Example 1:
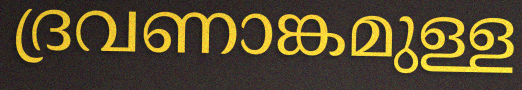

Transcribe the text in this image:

ദ്രവണാങ്കമുള്ള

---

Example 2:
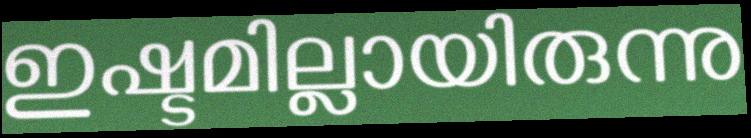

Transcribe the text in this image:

ഇഷ്ടമില്ലായിരുന്നു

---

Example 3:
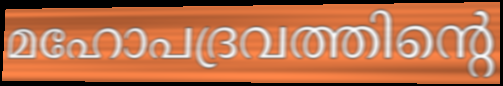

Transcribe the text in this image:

മഹോപദ്രവത്തിന്റെ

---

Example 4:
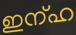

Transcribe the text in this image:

ഇന്ഹ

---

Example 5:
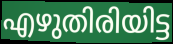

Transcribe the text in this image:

എഴുതിരിയിട്ട